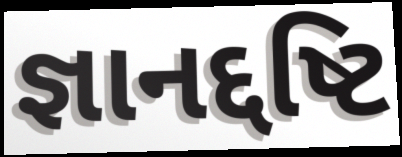
જ્ઞાનદ્દષ્ટિ